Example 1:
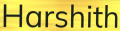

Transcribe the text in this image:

Harshith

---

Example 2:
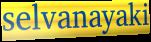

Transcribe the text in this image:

selvanayaki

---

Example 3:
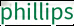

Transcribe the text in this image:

phillips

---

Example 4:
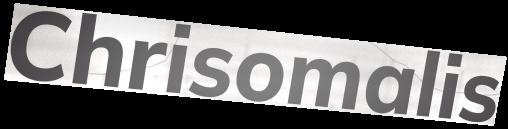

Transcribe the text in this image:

Chrisomalis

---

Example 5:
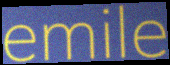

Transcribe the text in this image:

emile